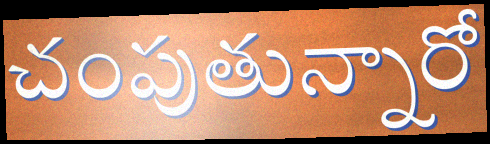
చంపుతున్నారో